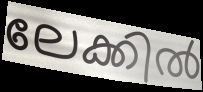
ലേക്കിൽ